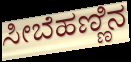
ಸೀಬೆಹಣ್ಣಿನ